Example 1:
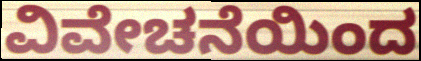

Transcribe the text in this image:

ವಿವೇಚನೆಯಿಂದ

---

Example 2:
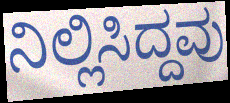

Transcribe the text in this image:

ನಿಲ್ಲಿಸಿದ್ದವು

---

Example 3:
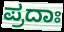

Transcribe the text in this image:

ಪ್ರದಾಃ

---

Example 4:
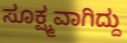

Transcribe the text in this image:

ಸೂಕ್ಷ್ಮವಾಗಿದ್ದು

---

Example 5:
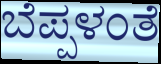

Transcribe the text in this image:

ಬೆಪ್ಪಳಂತೆ